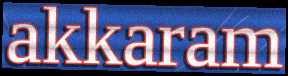
akkaram